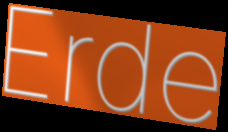
Erde